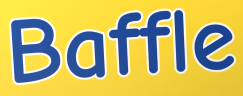
Baffle